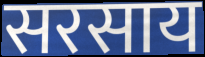
सरसाय